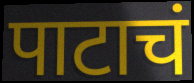
पाटाचं